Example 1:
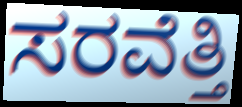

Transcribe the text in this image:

ಸರವೆತ್ತಿ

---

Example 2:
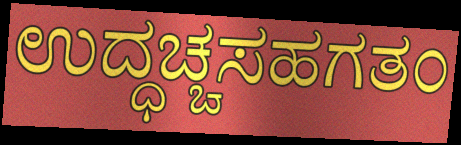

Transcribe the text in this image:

ಉದ್ಧಚ್ಚಸಹಗತಂ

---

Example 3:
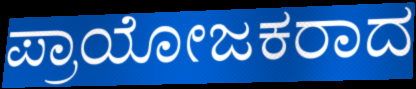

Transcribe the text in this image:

ಪ್ರಾಯೋಜಕರಾದ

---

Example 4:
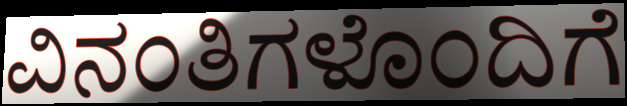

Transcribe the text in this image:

ವಿನಂತಿಗಳೊಂದಿಗೆ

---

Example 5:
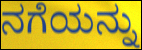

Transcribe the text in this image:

ನಗೆಯನ್ನು